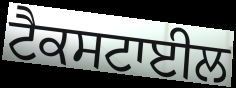
ਟੈਕਸਟਾਈਲ